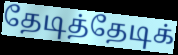
தேடித்தேடிக்